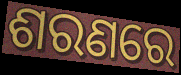
ଶରଣରେ